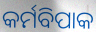
କର୍ମବିପାକ